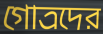
গোত্রদের